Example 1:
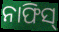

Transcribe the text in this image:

ନାଫିସ୍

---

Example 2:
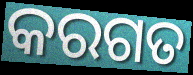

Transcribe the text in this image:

କରଗତ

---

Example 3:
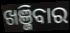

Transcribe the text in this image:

ଖଞ୍ଜିବାର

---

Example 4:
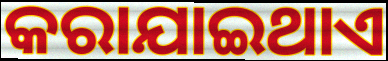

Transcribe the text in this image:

କରାଯାଇଥାଏ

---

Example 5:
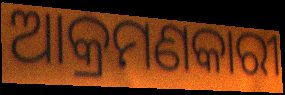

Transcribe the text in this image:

ଆକ୍ରମଣକାରୀ